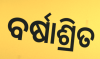
ବର୍ଷାଶ୍ରିତ